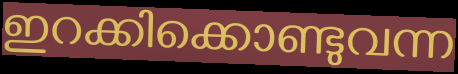
ഇറക്കിക്കൊണ്ടുവന്ന